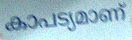
കാപട്യമാണ്